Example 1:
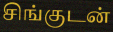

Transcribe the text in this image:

சிங்குடன்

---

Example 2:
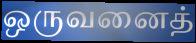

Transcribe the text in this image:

ஒருவனைத்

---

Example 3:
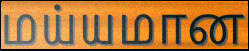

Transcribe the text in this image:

மய்யமான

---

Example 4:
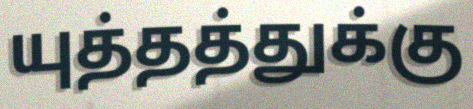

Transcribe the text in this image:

யுத்தத்துக்கு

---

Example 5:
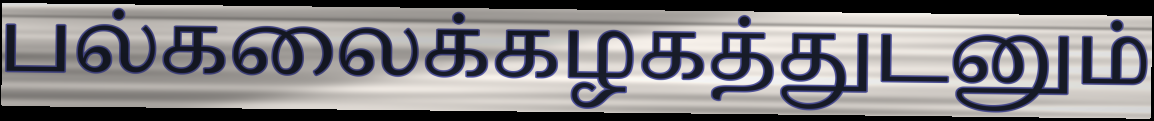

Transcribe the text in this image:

பல்கலைக்கழகத்துடனும்